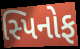
સ્પિનોફ